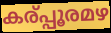
കര്പ്പൂരമഴ